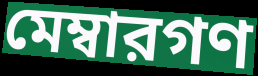
মেম্বারগণ